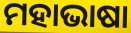
ମହାଭାଷା